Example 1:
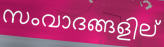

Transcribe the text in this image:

സംവാദങ്ങളില്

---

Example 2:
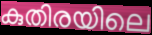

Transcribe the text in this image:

കുതിരയിലെ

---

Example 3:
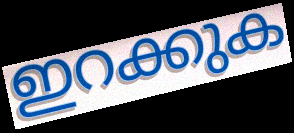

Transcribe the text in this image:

ഇറക്കുക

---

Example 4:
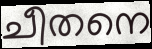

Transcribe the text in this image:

ചീതനെ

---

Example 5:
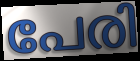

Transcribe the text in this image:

പേരി